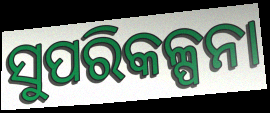
ସୁପରିକଳ୍ପନା